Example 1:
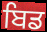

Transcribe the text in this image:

ਬਿਡ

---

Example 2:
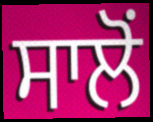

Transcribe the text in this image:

ਸਾਲੋਂ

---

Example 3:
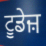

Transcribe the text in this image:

ਟੂਡੇਜ਼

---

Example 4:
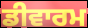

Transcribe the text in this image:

ਡੀਵਾਰਮ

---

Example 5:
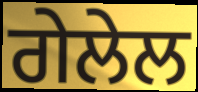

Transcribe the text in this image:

ਗੇਲੇਲ